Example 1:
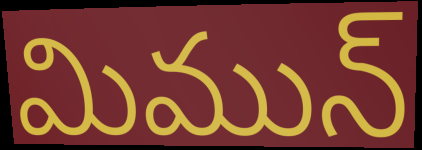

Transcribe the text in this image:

మిమున్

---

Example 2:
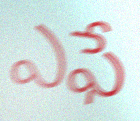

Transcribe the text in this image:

ఎఫే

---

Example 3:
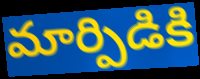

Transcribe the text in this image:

మార్పిడికి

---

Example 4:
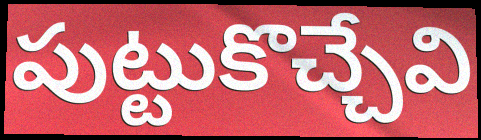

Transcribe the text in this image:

పుట్టుకొచ్చేవి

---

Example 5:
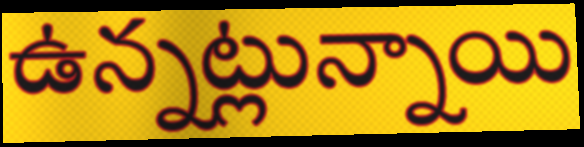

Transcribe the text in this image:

ఉన్నట్లున్నాయి